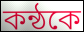
কন্ঠকে